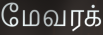
மேவரக்